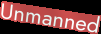
Unmanned